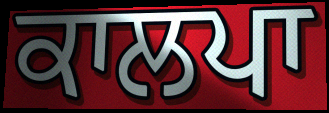
ਕਾਲਪਾ